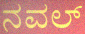
ನವಲ್